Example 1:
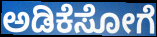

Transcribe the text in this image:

ಅಡಿಕೆಸೋಗೆ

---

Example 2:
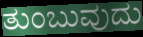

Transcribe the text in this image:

ತುಂಬುವುದು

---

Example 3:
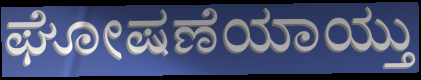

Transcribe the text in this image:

ಘೋಷಣೆಯಾಯ್ತು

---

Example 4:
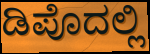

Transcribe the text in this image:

ಡಿಪೊದಲ್ಲಿ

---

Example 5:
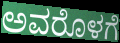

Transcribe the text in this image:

ಅವರೊಳಗೆ